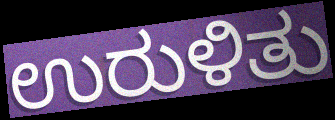
ಉರುಳಿತು